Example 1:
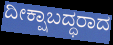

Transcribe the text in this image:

ದೀಕ್ಷಾಬದ್ಧರಾದ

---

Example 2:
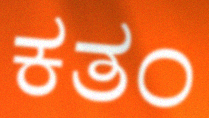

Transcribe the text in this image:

ಕತಂ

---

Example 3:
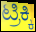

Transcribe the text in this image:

ಟ್ರಿಕ್ಕಿ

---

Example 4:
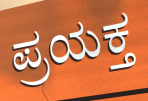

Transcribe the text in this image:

ಪ್ರಯಕ್ತ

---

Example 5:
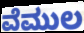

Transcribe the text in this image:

ವೆಮುಲ